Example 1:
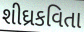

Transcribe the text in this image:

શીઘ્રકવિતા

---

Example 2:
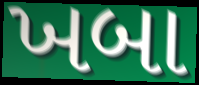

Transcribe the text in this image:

ખબા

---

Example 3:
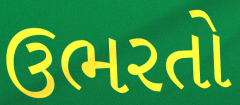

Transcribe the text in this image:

ઉભરતો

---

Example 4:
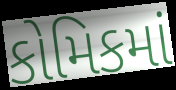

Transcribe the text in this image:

કોમિકમાં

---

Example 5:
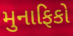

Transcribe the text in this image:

મુનાફિકો